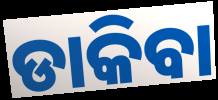
ଡାକିବା